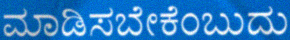
ಮಾಡಿಸಬೇಕೆಂಬುದು